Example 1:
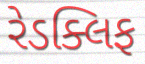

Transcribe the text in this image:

રેડક્લિફ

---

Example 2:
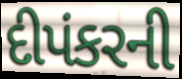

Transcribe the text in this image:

દીપંકરની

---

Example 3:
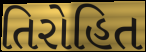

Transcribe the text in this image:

તિરોહિત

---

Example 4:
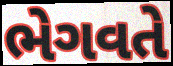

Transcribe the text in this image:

ભેગવતે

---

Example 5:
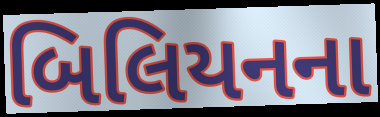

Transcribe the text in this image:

બિલિયનના